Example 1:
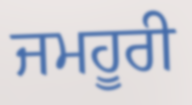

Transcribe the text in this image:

ਜਮਹੂਰੀ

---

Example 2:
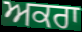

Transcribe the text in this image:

ਅਕਰਾ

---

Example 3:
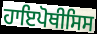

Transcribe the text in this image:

ਹਾਇਪੋਥੀਸਿਸ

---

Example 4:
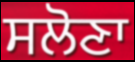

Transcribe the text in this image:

ਸਲੋਣਾ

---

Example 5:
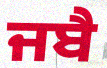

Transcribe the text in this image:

ਜਬੈ